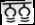
ਨੂਨੂ